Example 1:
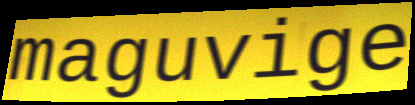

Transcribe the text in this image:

maguvige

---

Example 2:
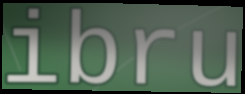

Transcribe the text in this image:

ibru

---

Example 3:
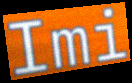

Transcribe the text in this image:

Imi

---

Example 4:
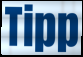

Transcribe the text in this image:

Tipp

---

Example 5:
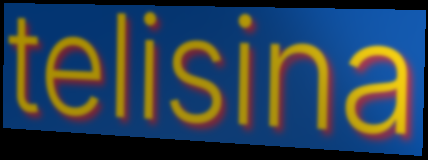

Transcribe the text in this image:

telisina